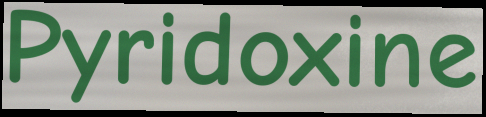
Pyridoxine